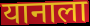
यानाला